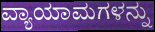
ವ್ಯಾಯಾಮಗಳನ್ನು